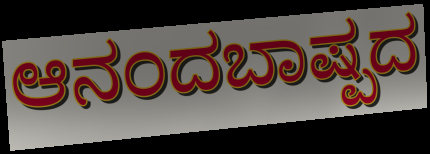
ಆನಂದಬಾಷ್ಪದ